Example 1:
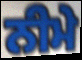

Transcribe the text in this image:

ਨੀਮੇ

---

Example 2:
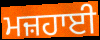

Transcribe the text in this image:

ਮਜ਼ਹਾਈ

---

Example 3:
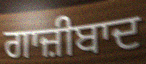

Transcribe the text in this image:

ਗਾਜ਼ੀਬਾਦ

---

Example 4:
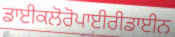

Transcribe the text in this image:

ਡਾਈਕਲੋਰੋਪਾਈਰੀਡਾਈਨ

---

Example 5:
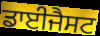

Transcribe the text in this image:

ਡਾਈਜੈਸਟ